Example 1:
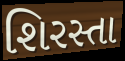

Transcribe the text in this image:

શિરસ્તા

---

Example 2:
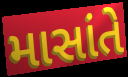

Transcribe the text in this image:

માસાંતે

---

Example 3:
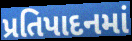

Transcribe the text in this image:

પ્રતિપાદનમાં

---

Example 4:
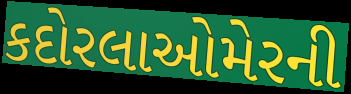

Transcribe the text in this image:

કદોરલાઓમેરની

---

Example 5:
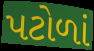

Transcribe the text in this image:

પટોળાં